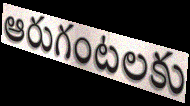
ఆరుగంటలకు